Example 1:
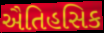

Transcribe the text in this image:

ઐતિહસિક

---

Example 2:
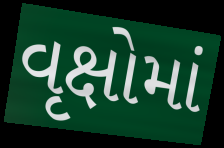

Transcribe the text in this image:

વૃક્ષોમાં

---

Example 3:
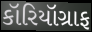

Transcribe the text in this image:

કૉરિયૉગ્રાફ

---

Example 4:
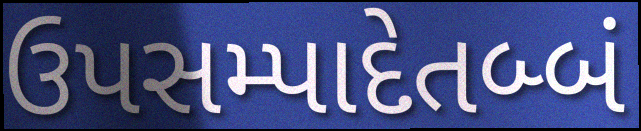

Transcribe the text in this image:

ઉપસમ્પાદેતબ્બં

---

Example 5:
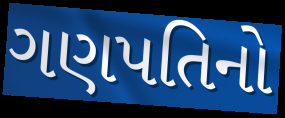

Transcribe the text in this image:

ગણપતિનો